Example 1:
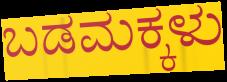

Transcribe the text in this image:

ಬಡಮಕ್ಕಳು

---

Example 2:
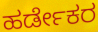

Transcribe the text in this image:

ಹರ್ಡೇಕರ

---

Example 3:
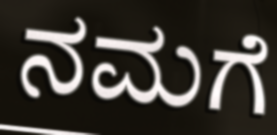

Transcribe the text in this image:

ನಮಗೆ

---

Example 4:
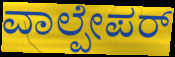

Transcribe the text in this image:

ವಾಲ್ಪೇಪರ್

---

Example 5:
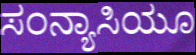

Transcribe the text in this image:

ಸಂನ್ಯಾಸಿಯೂ